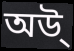
অউ্